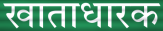
खाताधारक